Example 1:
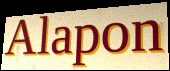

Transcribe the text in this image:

Alapon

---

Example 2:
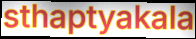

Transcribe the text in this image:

sthaptyakala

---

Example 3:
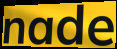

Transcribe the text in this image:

nade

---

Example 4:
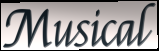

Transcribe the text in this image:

Musical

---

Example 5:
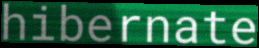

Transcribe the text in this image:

hibernate